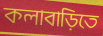
কলাবাড়িতে